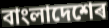
বাংলাদেশেৰ